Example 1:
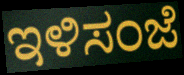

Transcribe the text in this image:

ಇಳಿಸಂಜೆ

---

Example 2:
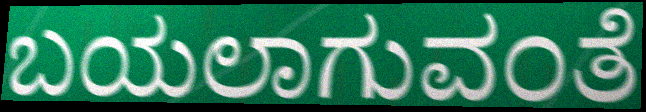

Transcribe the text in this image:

ಬಯಲಾಗುವಂತೆ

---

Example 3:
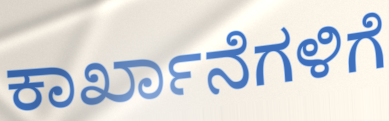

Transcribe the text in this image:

ಕಾರ್ಖಾನೆಗಳಿಗೆ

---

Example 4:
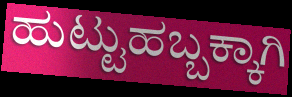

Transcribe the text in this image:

ಹುಟ್ಟುಹಬ್ಬಕ್ಕಾಗಿ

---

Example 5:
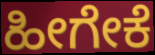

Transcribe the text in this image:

ಹೀಗೇಕೆ